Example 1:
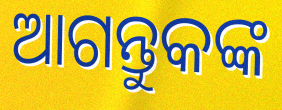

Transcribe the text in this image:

ଆଗନ୍ତୁକଙ୍କ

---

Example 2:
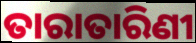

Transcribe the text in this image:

ତାରାତାରିଣୀ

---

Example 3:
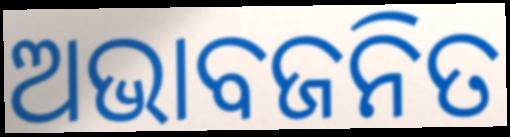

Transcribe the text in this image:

ଅଭାବଜନିତ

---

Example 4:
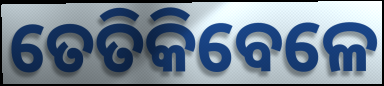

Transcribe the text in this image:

ତେତିକିବେଳେ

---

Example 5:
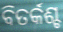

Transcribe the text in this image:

ବିତର୍କଶ୍ଚ